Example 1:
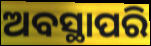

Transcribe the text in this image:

ଅବସ୍ଥାପରି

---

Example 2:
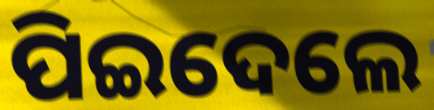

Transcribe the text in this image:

ପିଇଦେଲେ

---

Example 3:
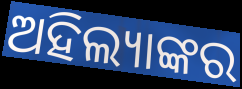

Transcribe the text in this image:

ଅହିଲ୍ୟାଙ୍କର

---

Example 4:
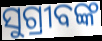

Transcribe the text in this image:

ସୁଗ୍ରୀବଙ୍କ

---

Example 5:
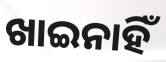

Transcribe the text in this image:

ଖାଇନାହିଁ